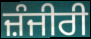
ਜ਼ੰਜੀਰੀ